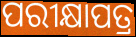
ପରୀକ୍ଷାପତ୍ର